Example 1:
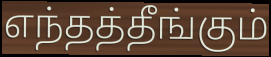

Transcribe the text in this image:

எந்தத்தீங்கும்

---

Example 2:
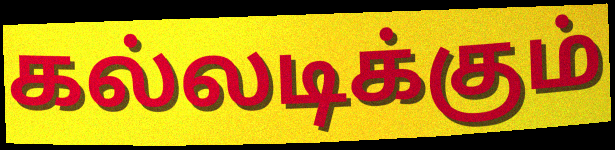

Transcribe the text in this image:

கல்லடிக்கும்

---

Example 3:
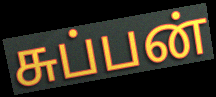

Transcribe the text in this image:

சுப்பன்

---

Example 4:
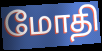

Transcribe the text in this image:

மோதி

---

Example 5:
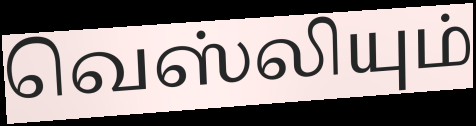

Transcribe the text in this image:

வெஸ்லியும்